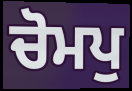
ਚੋਮਪੁ